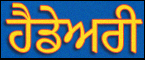
ਹੈਡੇਅਰੀ